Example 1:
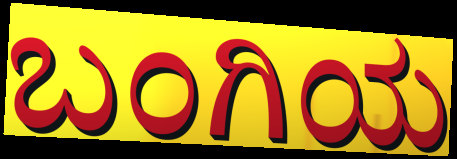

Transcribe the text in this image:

ಬಂಗಿಯ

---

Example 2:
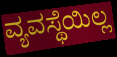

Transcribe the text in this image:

ವ್ಯವಸ್ಥೆಯಿಲ್ಲ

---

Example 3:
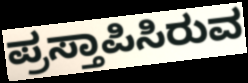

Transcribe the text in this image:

ಪ್ರಸ್ತಾಪಿಸಿರುವ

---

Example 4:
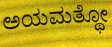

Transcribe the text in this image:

ಅಯಮತ್ಥೋ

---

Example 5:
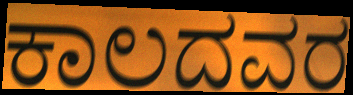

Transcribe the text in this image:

ಕಾಲದವರ